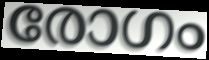
രോഗം